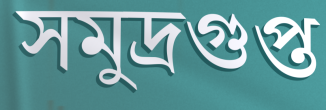
সমুদ্রগুপ্ত